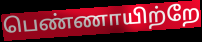
பெண்ணாயிற்றே